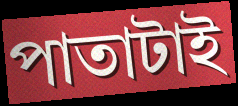
পাতাটাই